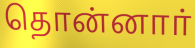
தொன்னார்